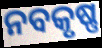
ନବକୃଷ୍ଣ